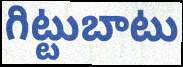
గిట్టుబాటు